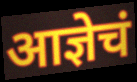
आज्ञेचं